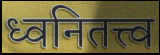
ध्वनितत्त्व